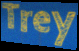
Trey